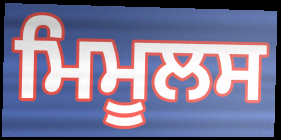
ਮਿਮੂਲਸ